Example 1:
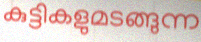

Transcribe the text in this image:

കുട്ടികളുമടങ്ങുന്ന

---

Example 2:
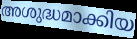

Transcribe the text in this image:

അശുദ്ധമാക്കിയ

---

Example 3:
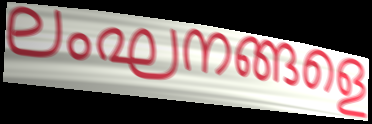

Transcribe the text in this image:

ലംഘനങ്ങളെ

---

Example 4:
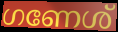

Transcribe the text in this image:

ഗണേശ്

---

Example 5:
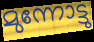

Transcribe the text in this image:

മുന്നോട്ടു